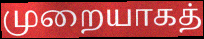
முறையாகத்